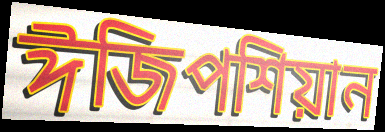
ঈজিপশিয়ান